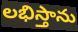
లభిస్తాను